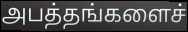
அபத்தங்களைச்